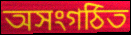
অসংগঠিত